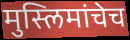
मुस्लिमांचेच